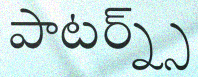
పాటర్న్స్